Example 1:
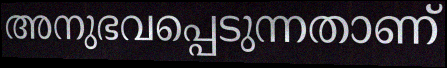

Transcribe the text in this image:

അനുഭവപ്പെടുന്നതാണ്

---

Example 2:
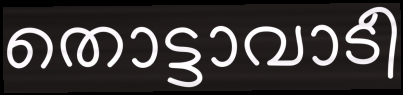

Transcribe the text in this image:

തൊട്ടാവാടീ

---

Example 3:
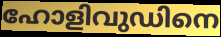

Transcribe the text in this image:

ഹോളിവുഡിനെ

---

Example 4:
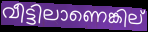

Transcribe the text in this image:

വീട്ടിലാണെങ്കില്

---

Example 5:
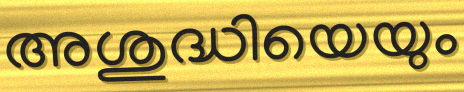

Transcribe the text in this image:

അശുദ്ധിയെയും